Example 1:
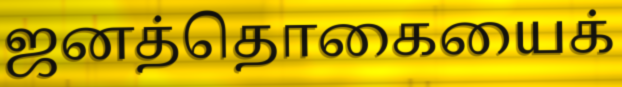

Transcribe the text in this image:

ஜனத்தொகையைக்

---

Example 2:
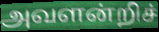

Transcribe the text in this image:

அவளன்றிச்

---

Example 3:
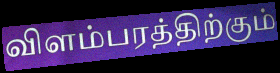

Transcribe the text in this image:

விளம்பரத்திற்கும்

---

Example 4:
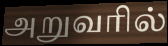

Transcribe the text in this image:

அறுவரில்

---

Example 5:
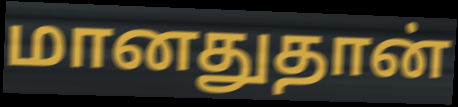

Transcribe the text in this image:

மானதுதான்